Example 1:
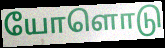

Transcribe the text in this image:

யோளொடு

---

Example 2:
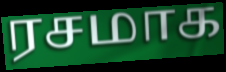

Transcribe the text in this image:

ரசமாக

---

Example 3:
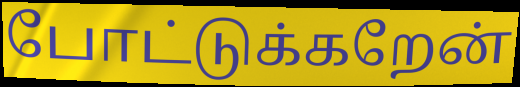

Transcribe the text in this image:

போட்டுக்கறேன்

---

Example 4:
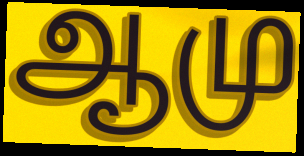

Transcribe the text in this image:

ஆமு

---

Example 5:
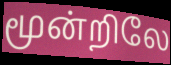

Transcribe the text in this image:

மூன்றிலே